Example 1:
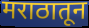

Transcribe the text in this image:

मराठातून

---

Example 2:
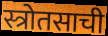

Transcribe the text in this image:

स्त्रोतसाची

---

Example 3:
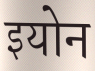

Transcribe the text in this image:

इयोन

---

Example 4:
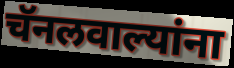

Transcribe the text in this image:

चॅनलवाल्यांना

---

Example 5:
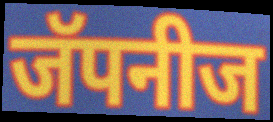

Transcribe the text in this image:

जॅपनीज